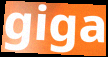
giga